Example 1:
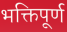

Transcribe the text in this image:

भक्तिपूर्ण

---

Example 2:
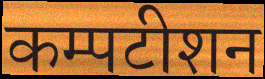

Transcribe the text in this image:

कम्पटीशन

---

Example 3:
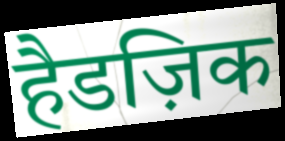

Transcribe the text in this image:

हैडज़िक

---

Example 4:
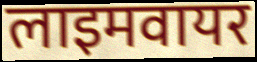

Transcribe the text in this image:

लाइमवायर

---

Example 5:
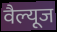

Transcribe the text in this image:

वैल्यूज